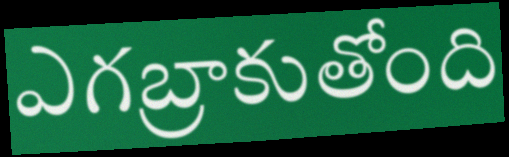
ఎగబ్రాకుతోంది